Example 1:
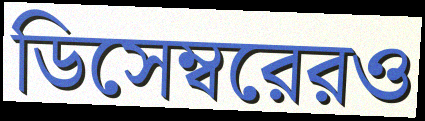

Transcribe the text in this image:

ডিসেম্বরেরও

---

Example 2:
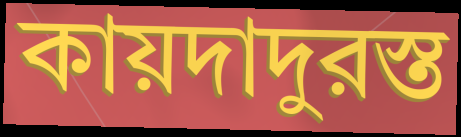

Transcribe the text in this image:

কায়দাদুরস্ত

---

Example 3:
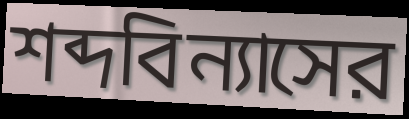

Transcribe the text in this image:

শব্দবিন্যাসের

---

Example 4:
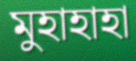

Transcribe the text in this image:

মুহাহাহা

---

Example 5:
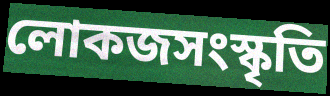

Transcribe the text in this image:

লোকজসংস্কৃতি